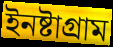
ইনষ্টাগ্ৰাম